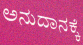
ಅನುದಾನಕ್ಕೆ